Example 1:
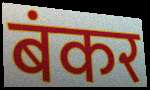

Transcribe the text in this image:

बंकर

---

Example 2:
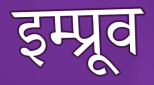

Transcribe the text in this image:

इम्प्रूव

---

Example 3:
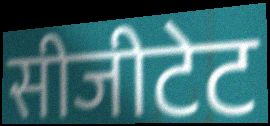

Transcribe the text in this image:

सीजीटेट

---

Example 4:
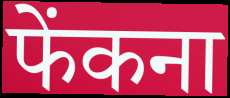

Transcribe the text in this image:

फेंकना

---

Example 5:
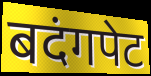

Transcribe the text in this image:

बदंगपेट